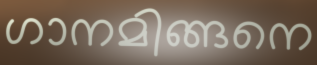
ഗാനമിങ്ങനെ